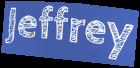
Jeffrey